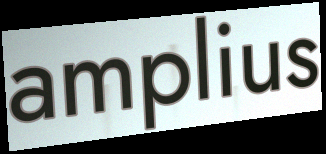
amplius